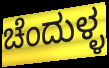
ಚೆಂದುಳ್ಳ